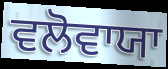
ਵਲੋਵਾਯਾ